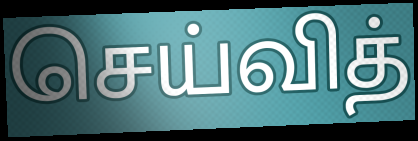
செய்வித்